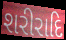
શરીરાદિ